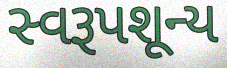
સ્વરૂપશૂન્ય